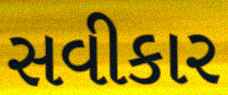
સવીકાર